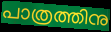
പാത്രത്തിനു